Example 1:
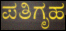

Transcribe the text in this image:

ಪತಿಗೃಹ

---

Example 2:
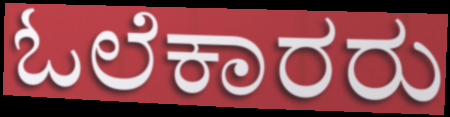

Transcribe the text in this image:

ಓಲೆಕಾರರು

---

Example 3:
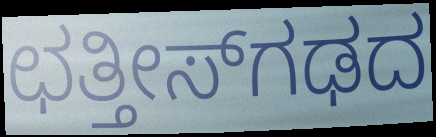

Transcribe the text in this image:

ಛತ್ತೀಸ್‌ಗಢದ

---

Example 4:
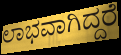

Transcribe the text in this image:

ಲಾಭವಾಗಿದ್ದರೆ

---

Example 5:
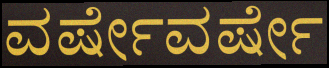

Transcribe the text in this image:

ವರ್ಷೇವರ್ಷೇ